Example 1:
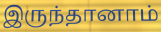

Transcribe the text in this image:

இருந்தானாம்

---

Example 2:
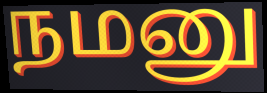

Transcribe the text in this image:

நமனு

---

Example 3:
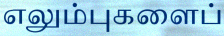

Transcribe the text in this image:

எலும்புகளைப்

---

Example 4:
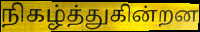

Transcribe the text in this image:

நிகழ்த்துகின்றன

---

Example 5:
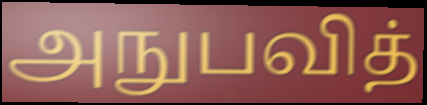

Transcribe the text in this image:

அநுபவித்